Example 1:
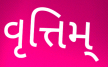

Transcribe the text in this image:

વૃત્તિમ્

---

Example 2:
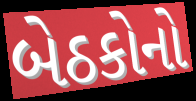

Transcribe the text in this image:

બેઠકોનો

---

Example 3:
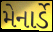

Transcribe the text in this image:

મેનાર્ડે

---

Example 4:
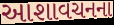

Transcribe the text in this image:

આશાવચનના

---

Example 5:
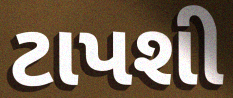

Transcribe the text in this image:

ટાપશી